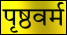
पृष्ठवर्म